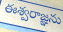
ఈశ్వరాజ్ఞను